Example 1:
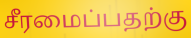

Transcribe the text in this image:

சீரமைப்பதற்கு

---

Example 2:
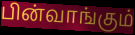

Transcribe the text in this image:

பின்வாங்கும்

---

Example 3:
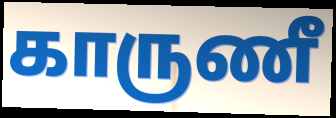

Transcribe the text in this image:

காருணீ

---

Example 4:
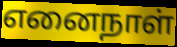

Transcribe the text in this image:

எனைநாள்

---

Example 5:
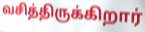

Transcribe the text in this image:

வசித்திருக்கிறார்